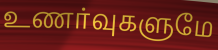
உணர்வுகளுமே